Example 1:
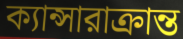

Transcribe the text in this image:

ক্যান্সারাক্রান্ত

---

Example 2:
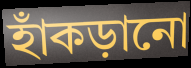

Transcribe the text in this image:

হাঁকড়ানো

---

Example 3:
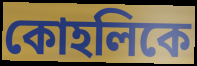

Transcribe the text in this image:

কোহলিকে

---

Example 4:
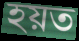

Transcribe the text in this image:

হয়ত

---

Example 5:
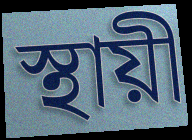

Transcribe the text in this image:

স্থায়ী